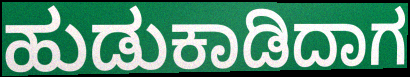
ಹುಡುಕಾಡಿದಾಗ